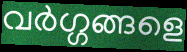
വർഗ്ഗങ്ങളെ